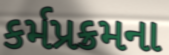
કર્મપ્રક્રમના